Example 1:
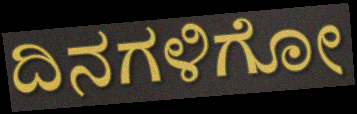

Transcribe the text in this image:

ದಿನಗಳಿಗೋ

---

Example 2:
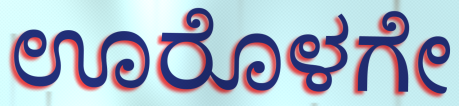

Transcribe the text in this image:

ಊರೊಳಗೇ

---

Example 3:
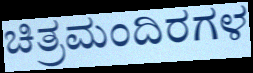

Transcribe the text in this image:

ಚಿತ್ರಮಂದಿರಗಳ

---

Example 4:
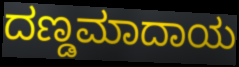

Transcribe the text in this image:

ದಣ್ಡಮಾದಾಯ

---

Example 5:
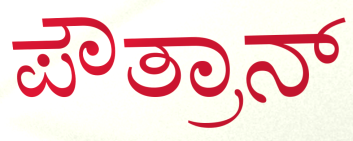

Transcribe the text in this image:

ಪೌತ್ರಾನ್